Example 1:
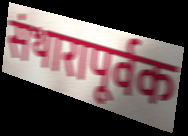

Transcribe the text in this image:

संथारापूर्वक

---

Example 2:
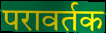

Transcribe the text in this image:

परावर्तक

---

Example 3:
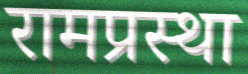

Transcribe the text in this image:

रामप्रस्था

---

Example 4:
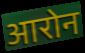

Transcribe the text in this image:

आरोन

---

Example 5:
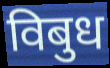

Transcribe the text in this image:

विबुध